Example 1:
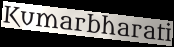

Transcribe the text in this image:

Kumarbharati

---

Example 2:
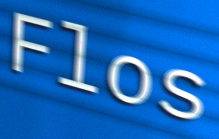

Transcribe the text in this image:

Flos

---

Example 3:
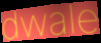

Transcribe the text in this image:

dwale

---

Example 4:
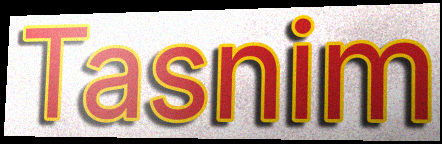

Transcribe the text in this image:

Tasnim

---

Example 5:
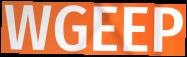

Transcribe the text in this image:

WGEEP